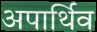
अपार्थिव